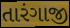
તારંગાજી